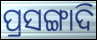
ପ୍ରସଙ୍ଗାଦି